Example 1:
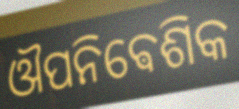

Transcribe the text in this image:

ଔପନିଵେଶିକ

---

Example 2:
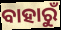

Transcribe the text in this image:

ବାହାରୁଁ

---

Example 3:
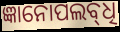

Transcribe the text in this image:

ଜ୍ଞାନୋପଲବ୍‌ଧି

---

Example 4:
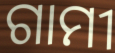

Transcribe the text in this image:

ଗାମୀ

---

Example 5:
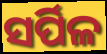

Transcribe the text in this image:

ସର୍ପିଳ